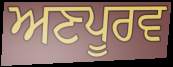
ਅਣਪੂਰਵ